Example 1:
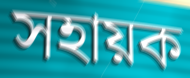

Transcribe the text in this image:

সহায়ক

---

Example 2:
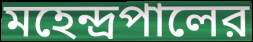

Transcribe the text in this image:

মহেন্দ্রপালের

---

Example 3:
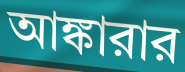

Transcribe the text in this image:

আঙ্কারার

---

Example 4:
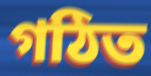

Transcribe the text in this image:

গঠিত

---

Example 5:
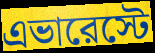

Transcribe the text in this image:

এভারেস্টে